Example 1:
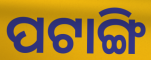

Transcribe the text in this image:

ପଟାଙ୍ଗି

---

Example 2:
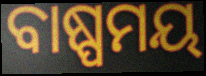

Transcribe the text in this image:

ବାଷ୍ପମୟ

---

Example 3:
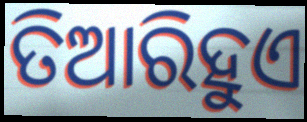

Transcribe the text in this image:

ତିଆରିହୁଏ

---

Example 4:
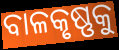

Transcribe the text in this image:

ବାଳକୃଷ୍ଣକୁ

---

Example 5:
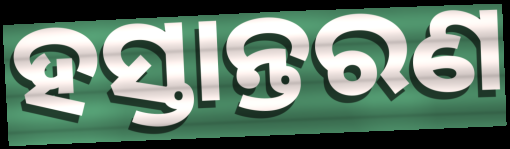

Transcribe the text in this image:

ହସ୍ତାନ୍ତରଣ